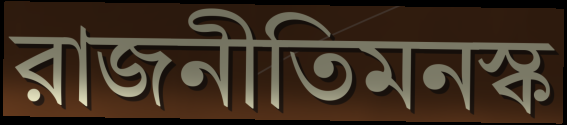
রাজনীতিমনস্ক